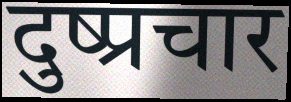
दुष्‍प्रचार